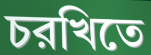
চরখিতে